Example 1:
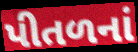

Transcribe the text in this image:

પીતળનાં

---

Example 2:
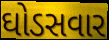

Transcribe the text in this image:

ઘોડસવાર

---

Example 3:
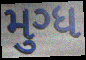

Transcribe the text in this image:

મુગ્ધ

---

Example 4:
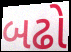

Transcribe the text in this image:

બઢો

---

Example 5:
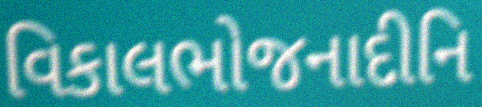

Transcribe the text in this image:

વિકાલભોજનાદીનિ